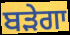
ਬੜੇਗਾ